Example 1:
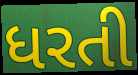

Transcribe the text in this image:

ધરતી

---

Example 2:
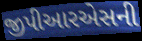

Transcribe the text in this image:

જીપીઆરએસની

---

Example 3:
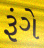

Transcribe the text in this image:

રૂંગે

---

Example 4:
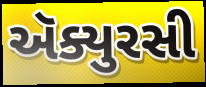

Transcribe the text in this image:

ઍક્યુરસી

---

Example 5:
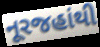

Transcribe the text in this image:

નૂરજહાંથી